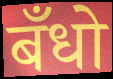
बँधो